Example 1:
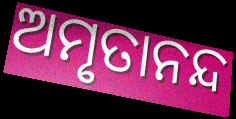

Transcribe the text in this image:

ଅମୃତାନନ୍ଦ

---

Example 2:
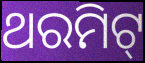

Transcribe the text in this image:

ଥରମିଟ୍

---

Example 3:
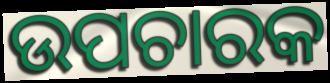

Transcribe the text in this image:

ଉପଚାରକ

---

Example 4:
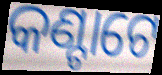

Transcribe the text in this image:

କଣ୍ଟାଟେ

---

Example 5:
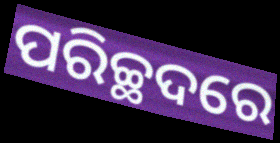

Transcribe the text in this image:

ପରିଚ୍ଛଦରେ